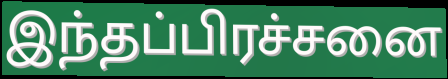
இந்தப்பிரச்சனை